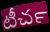
టీచర్‍